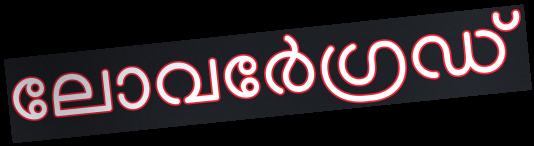
ലോവർേഗ്രഡ്